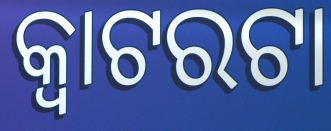
କ୍ଵାଟରଟା